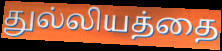
துல்லியத்தை